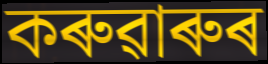
কৰুৱাৰুৰ